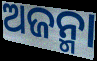
ଅଜନ୍ମା